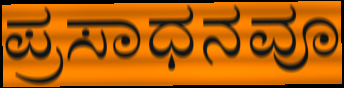
ಪ್ರಸಾಧನವೂ